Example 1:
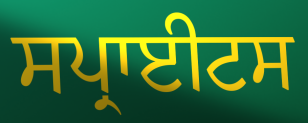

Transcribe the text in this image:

ਸਪ੍ਰਾਈਟਸ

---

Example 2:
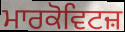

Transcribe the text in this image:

ਮਾਰਕੋਵਿਟਜ਼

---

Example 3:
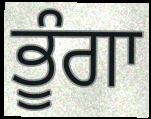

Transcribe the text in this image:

ਭੂੰਗਾ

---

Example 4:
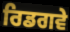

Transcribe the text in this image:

ਰਿਡਗਵੇ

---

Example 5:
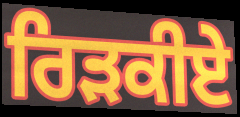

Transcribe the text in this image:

ਰਿੜਕੀਏ